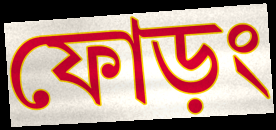
ফোড়ং